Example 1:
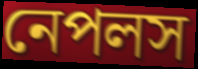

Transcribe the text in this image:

নেপলস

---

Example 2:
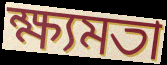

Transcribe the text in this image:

ক্ষ্যমতা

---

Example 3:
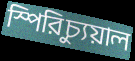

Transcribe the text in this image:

স্পিরিচ্যুয়াল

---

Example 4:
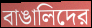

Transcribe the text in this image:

বাঙালিদের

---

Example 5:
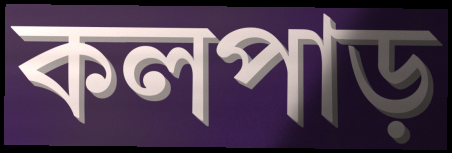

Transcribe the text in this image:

কলপাড়